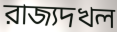
রাজ্যদখল